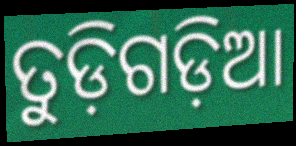
ତୁଡ଼ିଗଡ଼ିଆ